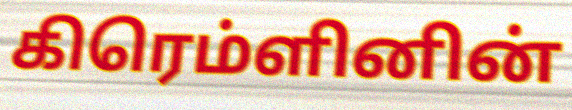
கிரெம்ளினின்